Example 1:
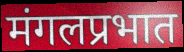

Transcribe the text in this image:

मंगलप्रभात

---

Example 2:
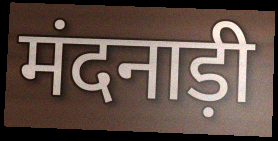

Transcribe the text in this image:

मंदनाड़ी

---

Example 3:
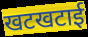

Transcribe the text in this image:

खटखटाई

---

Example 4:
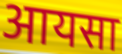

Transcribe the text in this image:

आयसा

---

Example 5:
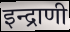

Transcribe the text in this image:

इन्द्राणी